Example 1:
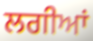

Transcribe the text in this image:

ਲਗੀਆਂ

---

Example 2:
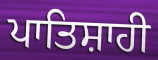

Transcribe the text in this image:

ਪਾਤਿਸ਼ਾਹੀ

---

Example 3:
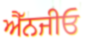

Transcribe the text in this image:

ਐੱਨਜੀਓ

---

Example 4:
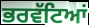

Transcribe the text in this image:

ਭਰਵੱਟਿਆਂ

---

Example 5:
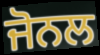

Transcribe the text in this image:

ਜੋਨਲ